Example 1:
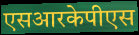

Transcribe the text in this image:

एसआरकेपीएस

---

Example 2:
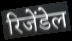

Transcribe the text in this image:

रिजेंडेल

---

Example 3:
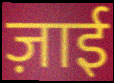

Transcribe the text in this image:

ज़ाई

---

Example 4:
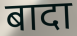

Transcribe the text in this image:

बादा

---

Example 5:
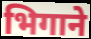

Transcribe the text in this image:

भिगाने